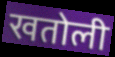
खतोली